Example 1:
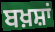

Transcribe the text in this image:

ਬਖ਼ਸ਼ਾਂ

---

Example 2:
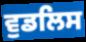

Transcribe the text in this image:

ਵੁਡਲਿਸ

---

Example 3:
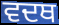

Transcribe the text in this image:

ਵਦਥ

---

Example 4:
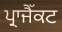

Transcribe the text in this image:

ਪ੍ਰਾਜੈੱਕਟ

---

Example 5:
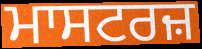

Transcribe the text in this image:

ਮਾਸਟਰਜ਼